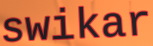
swikar